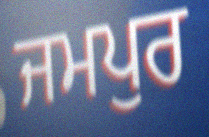
ਜਮਪੁਰ